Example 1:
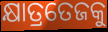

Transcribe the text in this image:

କ୍ଷାତ୍ରତେଜକୁ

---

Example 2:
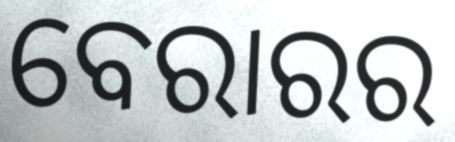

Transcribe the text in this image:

ବେରାରର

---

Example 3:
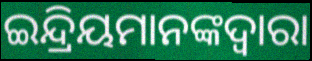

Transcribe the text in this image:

ଇନ୍ଦ୍ରିୟମାନଙ୍କଦ୍ୱାରା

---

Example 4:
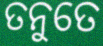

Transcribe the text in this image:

ତନୁତେ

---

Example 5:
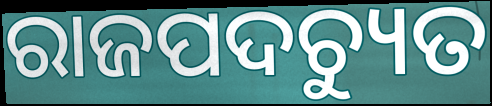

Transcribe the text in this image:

ରାଜପଦଚ୍ୟୁତ